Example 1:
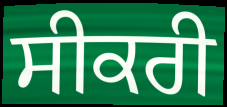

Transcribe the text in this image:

ਸੀਕਰੀ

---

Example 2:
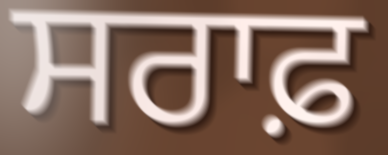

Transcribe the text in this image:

ਸਰਾਫ਼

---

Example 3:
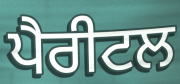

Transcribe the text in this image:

ਪੈਰੀਟਲ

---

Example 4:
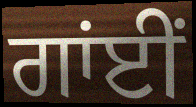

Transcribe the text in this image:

ਗਾਂਈਂ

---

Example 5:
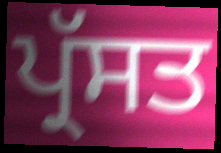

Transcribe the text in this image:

ਪ੍ਰੱਸਤ